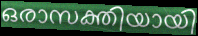
ഒരാസക്തിയായി